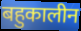
बहुकालीन